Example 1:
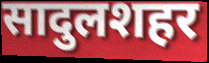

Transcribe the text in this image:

सादुलशहर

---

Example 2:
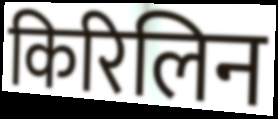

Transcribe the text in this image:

किरिलिन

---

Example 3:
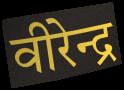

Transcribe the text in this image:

वीरेन्‍द्र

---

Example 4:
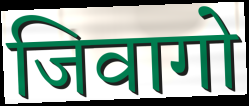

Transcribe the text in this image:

जिवागो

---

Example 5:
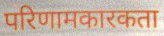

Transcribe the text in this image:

परिणामकारकता